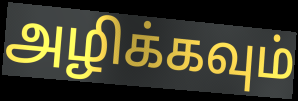
அழிக்கவும்